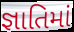
જ્ઞાતિમાં